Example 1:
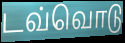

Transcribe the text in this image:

டவ்வொடு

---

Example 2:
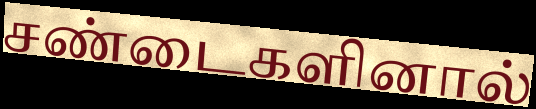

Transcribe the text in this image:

சண்டைகளினால்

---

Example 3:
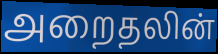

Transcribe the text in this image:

அறைதலின்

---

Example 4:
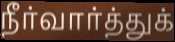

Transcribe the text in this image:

நீர்வார்த்துக்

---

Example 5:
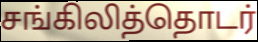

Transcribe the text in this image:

சங்கிலித்தொடர்